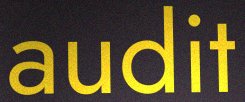
audit